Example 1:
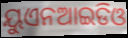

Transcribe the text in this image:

ୟୁଏନଆଇଡିଓ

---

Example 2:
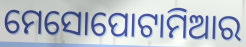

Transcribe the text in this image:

ମେସୋପୋଟାମିଆର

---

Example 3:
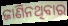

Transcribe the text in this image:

ଜାଣିନଥିବାର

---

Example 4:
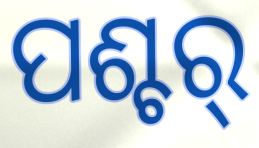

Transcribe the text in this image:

ପଶ୍ଚର୍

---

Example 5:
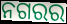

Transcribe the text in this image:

ନଗରର